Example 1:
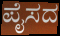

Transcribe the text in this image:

ಪೈಸದ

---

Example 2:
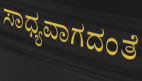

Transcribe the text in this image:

ಸಾಧ್ಯವಾಗದಂತೆ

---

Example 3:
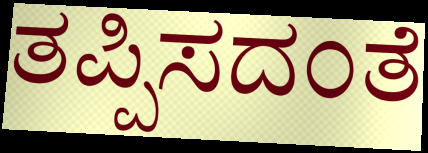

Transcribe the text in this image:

ತಪ್ಪಿಸದಂತೆ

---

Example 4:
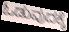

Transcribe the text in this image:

ಓಡುವುದಕ್ಕೆ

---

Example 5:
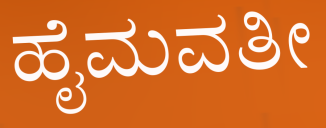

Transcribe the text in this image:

ಹೈಮವತೀ